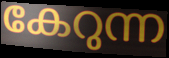
കേറുന്ന